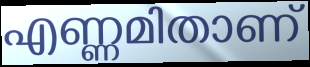
എണ്ണമിതാണ്